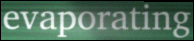
evaporating